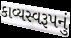
કાવ્યસ્વરૂપનું